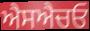
ਐਸਐਚਓ